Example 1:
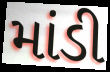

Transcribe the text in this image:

માંડી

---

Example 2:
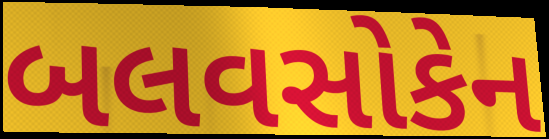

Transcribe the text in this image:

બલવસોકેન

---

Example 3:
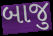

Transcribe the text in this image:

બાજુ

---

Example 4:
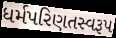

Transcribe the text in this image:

ધર્મપરિણતસ્વરૂપ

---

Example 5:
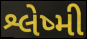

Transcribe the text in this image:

શ્લેષ્મી